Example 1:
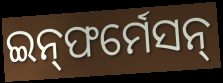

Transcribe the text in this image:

ଇନ୍‍ଫର୍ମେସନ୍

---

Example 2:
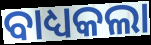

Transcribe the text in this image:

ବାଧ୍ୟକଲା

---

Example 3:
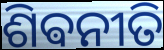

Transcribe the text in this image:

ଶିଵନୀତି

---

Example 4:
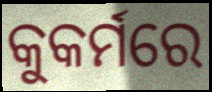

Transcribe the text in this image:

କୁକର୍ମରେ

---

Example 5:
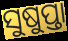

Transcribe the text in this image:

ସୁଷୁପ୍ତା